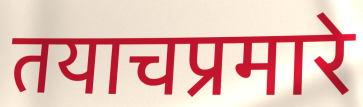
तयाचप्रमारे